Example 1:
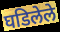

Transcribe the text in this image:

घडिलेले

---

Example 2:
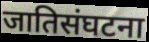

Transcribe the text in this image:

जातिसंघटना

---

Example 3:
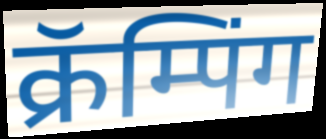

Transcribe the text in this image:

क्रॅम्पिंग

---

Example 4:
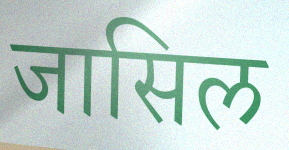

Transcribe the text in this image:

जासिल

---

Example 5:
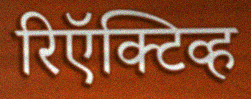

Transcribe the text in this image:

रिऍक्टिव्ह